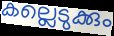
കല്ലെടുക്കും